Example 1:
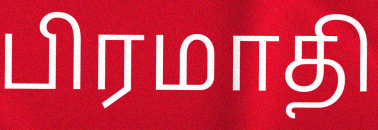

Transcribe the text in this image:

பிரமாதி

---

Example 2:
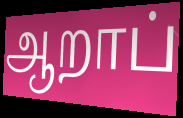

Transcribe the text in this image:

ஆறாப்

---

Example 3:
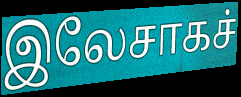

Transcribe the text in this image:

இலேசாகச்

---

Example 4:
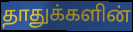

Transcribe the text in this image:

தாதுக்களின்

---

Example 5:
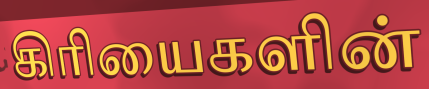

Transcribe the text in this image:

கிரியைகளின்